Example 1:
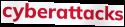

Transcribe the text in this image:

cyberattacks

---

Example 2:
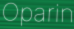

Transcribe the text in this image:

Oparin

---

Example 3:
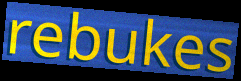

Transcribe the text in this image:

rebukes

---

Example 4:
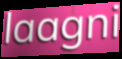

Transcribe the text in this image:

laagni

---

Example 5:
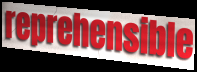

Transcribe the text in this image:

reprehensible